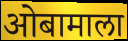
ओबामाला